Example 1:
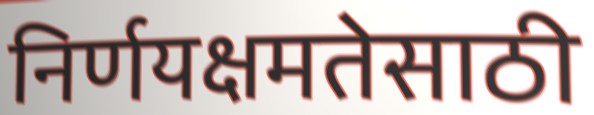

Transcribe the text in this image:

निर्णयक्षमतेसाठी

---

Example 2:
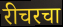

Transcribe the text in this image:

रीचरचा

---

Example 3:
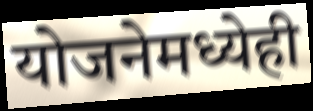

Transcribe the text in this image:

योजनेमध्येही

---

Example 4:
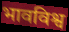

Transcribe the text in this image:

भावविश्व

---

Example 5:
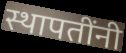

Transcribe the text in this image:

स्थापतींनी